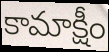
కామాక్షీం